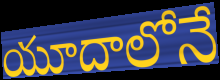
యూదాలోనే